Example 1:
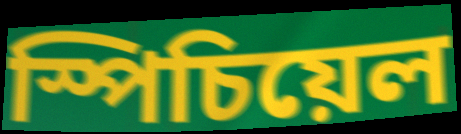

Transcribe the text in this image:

স্পিচিয়েল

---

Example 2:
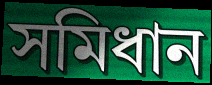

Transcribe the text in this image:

সমিধান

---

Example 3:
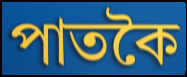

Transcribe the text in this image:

পাতকৈ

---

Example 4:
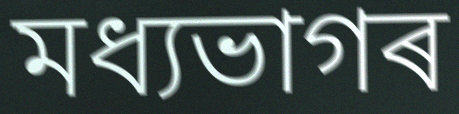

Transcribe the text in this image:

মধ্যভাগৰ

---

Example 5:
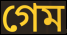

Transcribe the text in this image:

গেম